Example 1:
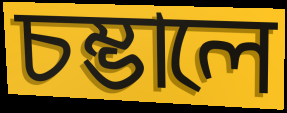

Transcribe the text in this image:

চম্ভালে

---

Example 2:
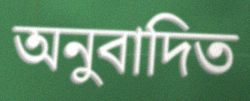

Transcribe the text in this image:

অনুবাদিত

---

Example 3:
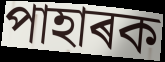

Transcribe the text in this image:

পাহাৰক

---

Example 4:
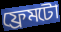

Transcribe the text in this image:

ফ্ৰেমটো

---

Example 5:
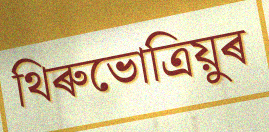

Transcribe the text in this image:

থিৰুভোত্ৰিয়ুৰ